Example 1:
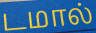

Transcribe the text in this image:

டமால்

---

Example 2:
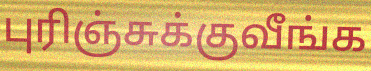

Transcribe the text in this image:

புரிஞ்சுக்குவீங்க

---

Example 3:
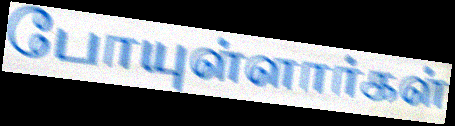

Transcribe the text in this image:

போயுள்ளார்கள்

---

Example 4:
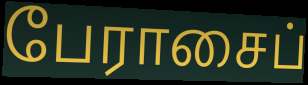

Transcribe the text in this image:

பேராசைப்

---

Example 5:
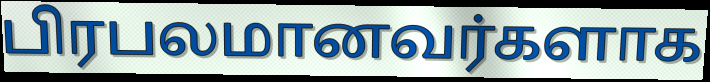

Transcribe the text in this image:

பிரபலமானவர்களாக